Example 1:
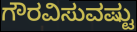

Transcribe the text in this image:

ಗೌರವಿಸುವಷ್ಟು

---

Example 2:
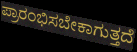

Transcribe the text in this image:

ಪ್ರಾರಂಭಿಸಬೇಕಾಗುತ್ತದೆ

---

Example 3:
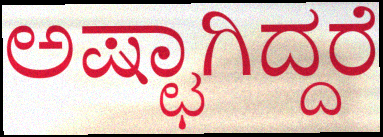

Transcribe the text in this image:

ಅಷ್ಟಾಗಿದ್ದರೆ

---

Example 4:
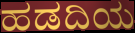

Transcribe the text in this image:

ಹಡದಿಯ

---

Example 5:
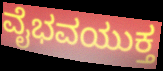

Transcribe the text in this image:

ವೈಭವಯುಕ್ತ